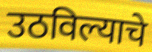
उठविल्याचे